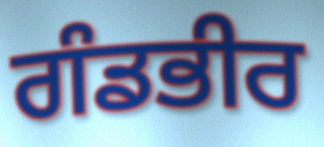
ਗੰਡਭੀਰ